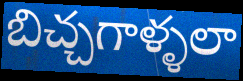
బిచ్చగాళ్ళలా